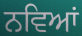
ਨਵਿਆਂ